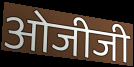
ओजीजी